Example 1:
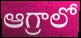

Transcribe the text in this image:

ఆగ్రాలో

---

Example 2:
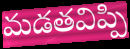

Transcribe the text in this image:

మడతవిప్పి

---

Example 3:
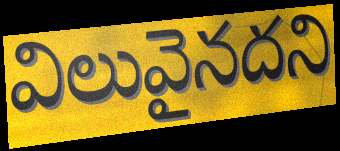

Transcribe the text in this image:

విలువైనదని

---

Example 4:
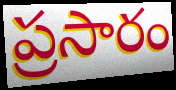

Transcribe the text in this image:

ప్రసారం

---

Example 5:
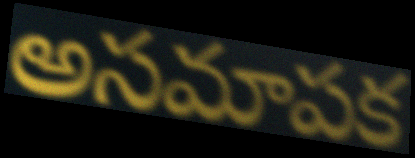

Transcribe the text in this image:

అసమాపక